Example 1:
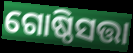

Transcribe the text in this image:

ଗୋଷ୍ଠିସତ୍ତା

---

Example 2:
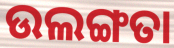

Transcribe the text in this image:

ଉଲଙ୍ଗତା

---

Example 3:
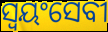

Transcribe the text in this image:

ସ୍ୱୟଂସେବୀ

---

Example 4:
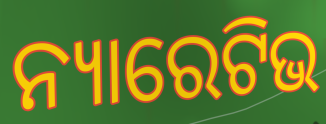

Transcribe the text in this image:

ନ୍ୟାରେଟିଭ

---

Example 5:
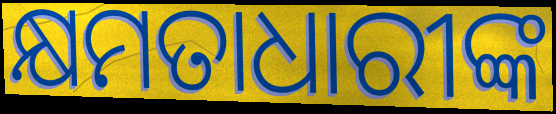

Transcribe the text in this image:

କ୍ଷମତାଧାରୀଙ୍କ